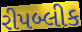
રીપબ્લીક